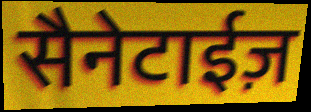
सैनेटाईज़